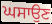
ਘਸਾਉਣ